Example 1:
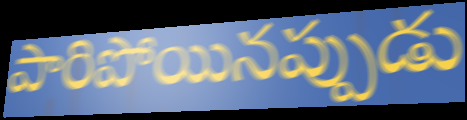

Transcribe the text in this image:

పారిపోయినప్పుడు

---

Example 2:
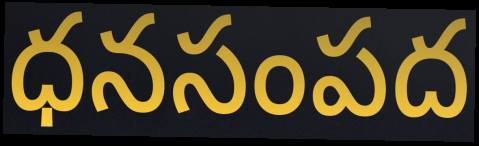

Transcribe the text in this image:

ధనసంపద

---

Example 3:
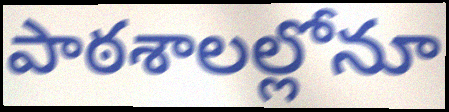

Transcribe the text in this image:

పాఠశాలల్లోనూ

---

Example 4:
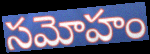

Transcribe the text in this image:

సమోహం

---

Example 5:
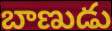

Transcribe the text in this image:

బాణుడు